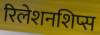
रिलेशनशिप्स